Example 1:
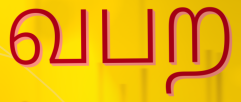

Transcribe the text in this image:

வபற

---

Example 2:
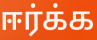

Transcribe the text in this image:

ஈர்க்க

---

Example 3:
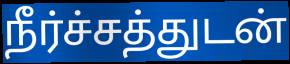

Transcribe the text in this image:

நீர்ச்சத்துடன்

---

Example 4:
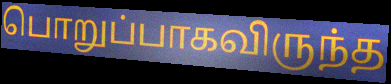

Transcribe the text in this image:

பொறுப்பாகவிருந்த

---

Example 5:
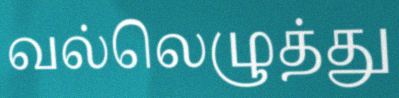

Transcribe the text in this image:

வல்லெழுத்து